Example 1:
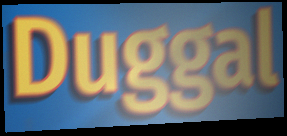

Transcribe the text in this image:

Duggal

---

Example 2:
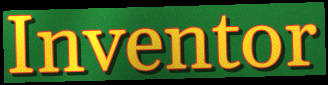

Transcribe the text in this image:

Inventor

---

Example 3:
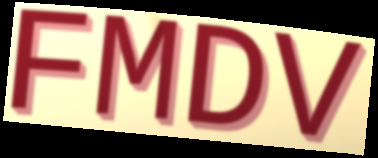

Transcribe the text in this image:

FMDV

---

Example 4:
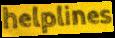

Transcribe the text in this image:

helplines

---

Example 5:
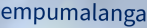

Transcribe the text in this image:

empumalanga